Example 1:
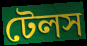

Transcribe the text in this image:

টেলস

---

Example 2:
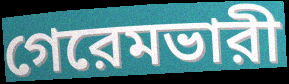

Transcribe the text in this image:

গেরেমভারী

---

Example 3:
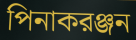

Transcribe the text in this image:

পিনাকরঞ্জন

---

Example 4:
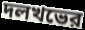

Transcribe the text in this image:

দলখভের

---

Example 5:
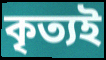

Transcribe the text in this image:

কৃত্যই